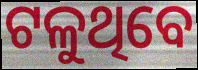
ଟଳୁଥିବେ